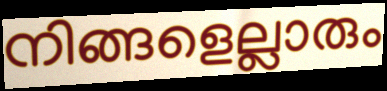
നിങ്ങളെല്ലാരും